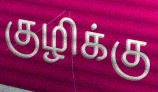
குழிக்கு